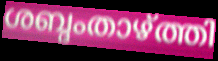
ശബ്ദംതാഴ്ത്തി